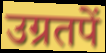
उग्रतपें